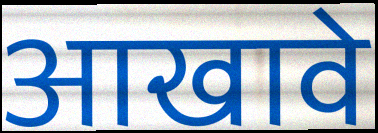
आखावे